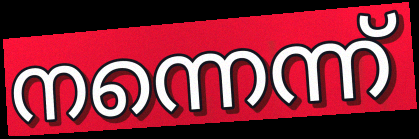
നന്നെന്ന്